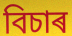
বিচাৰ